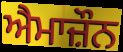
ਐਮਾਜ਼ੌਨ